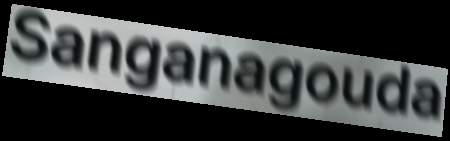
Sanganagouda